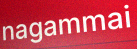
nagammai